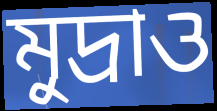
মুদ্রাও